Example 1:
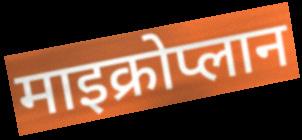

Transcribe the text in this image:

माइक्रोप्लान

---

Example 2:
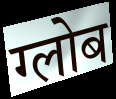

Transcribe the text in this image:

ग्‍लोब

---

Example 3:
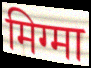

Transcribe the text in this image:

मिग्मा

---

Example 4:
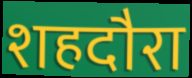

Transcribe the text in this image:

शहदौरा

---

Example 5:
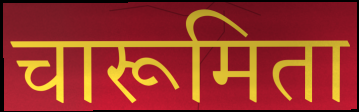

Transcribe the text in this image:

चारूमिता